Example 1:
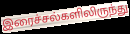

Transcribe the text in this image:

இரைச்சல்களிலிருந்து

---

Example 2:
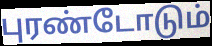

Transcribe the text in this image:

புரண்டோடும்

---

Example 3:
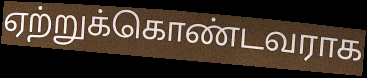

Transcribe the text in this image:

ஏற்றுக்கொண்டவராக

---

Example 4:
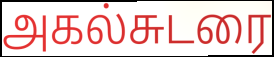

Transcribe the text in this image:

அகல்சுடரை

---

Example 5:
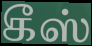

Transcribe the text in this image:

கீஸ்